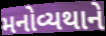
મનોવ્યથાને